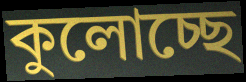
কুলোচ্ছে